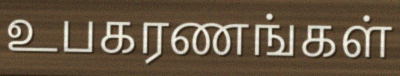
உபகரணங்கள்